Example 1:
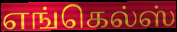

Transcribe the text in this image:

எங்கெல்ஸ்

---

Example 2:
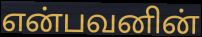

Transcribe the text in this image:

என்பவனின்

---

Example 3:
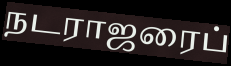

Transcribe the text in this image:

நடராஜரைப்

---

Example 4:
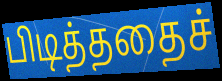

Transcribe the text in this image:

பிடித்ததைச்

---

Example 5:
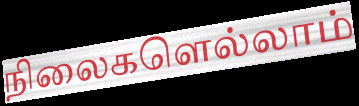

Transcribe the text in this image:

நிலைகளெல்லாம்